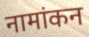
नामांकन